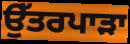
ਉੱਤਰਪਾੜਾ